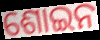
ଶୋଇନ